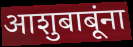
आशुबाबूंना